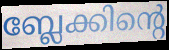
ബ്ലേക്കിന്റെ